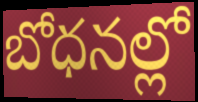
బోధనల్లో